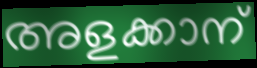
അളക്കാന്